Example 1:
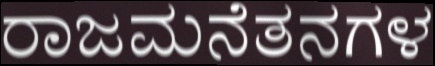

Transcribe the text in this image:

ರಾಜಮನೆತನಗಳ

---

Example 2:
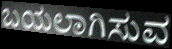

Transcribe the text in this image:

ಬಯಲಾಗಿಸುವ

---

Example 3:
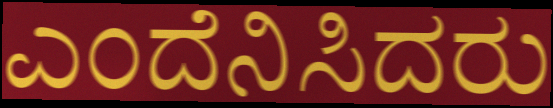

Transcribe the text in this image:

ಎಂದೆನಿಸಿದರು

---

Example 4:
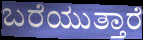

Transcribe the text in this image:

ಬರೆಯುತ್ತಾರೆ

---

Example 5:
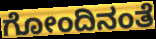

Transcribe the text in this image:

ಗೋಂದಿನಂತೆ